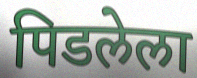
पिडलेला